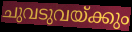
ചുവടുവയ്ക്കും